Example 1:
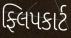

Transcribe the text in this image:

ફ્લિપકાર્ટ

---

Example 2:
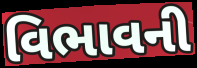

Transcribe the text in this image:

વિભાવની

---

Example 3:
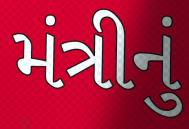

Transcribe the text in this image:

મંત્રીનું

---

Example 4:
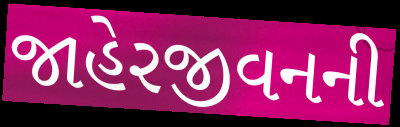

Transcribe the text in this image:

જાહેરજીવનની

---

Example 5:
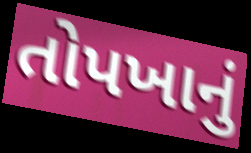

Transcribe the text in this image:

તોપખાનું